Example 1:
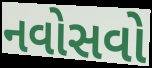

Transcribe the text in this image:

નવોસવો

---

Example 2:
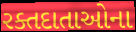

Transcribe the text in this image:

રક્તદાતાઓના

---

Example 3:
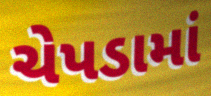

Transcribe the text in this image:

ચેપડામાં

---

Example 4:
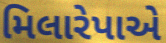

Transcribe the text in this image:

મિલારેપાએ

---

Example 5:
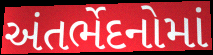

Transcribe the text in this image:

અંતર્ભેદનોમાં